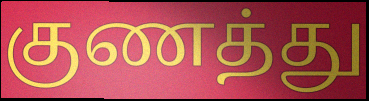
குணத்து